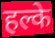
हल्के